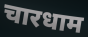
चारधाम